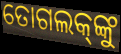
ତୋଗଲକ୍‌ଙ୍କୁ